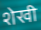
शेखी